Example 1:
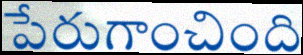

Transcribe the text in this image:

పేరుగాంచింది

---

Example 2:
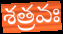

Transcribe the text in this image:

శత్రవః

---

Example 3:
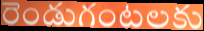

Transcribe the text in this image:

రెండుగంటలకు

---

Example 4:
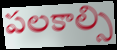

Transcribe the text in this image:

పలకాల్సి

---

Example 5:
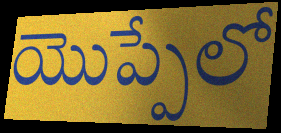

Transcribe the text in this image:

యొప్పేలో